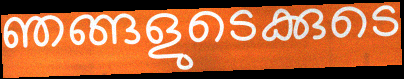
ഞങ്ങളുടെക്കുടെ